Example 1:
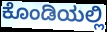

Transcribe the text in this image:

ಕೊಂಡಿಯಲ್ಲಿ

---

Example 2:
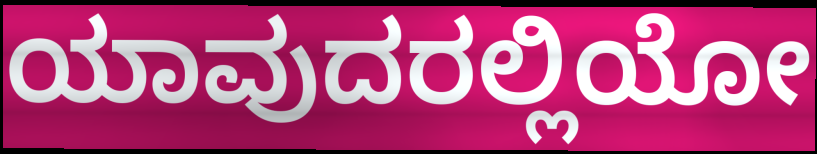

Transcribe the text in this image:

ಯಾವುದರಲ್ಲಿಯೋ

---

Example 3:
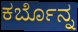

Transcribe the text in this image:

ಕರ್ಬೊನ್ನ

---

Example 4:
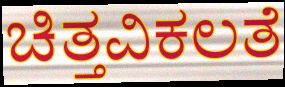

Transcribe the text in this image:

ಚಿತ್ತವಿಕಲತೆ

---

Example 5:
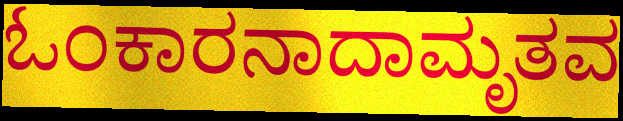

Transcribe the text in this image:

ಓಂಕಾರನಾದಾಮೃತವ